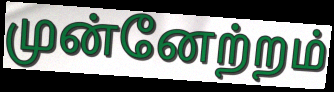
முன்னேற்றம்